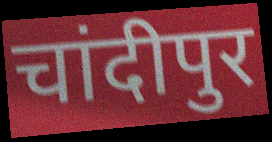
चांदीपुर